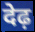
देढ़